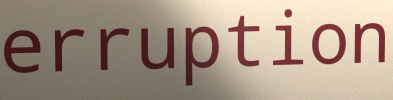
erruption